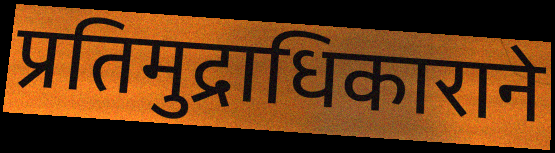
प्रतिमुद्राधिकाराने